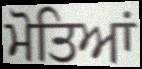
ਮੋਤਿਆਂ